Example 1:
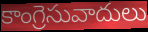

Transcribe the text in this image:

కాంగ్రెసువాదులు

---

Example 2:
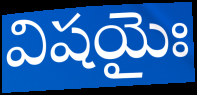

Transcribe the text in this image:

విషయైః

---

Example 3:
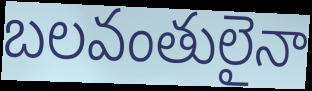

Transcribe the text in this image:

బలవంతులైనా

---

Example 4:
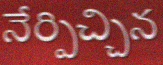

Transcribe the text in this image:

నేర్పిచ్చిన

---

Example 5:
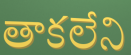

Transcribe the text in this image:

తాకలేని